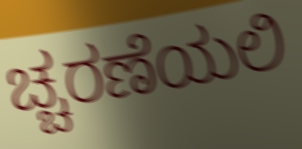
ಚ್ಚರಣೆಯಲಿ